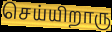
செய்யிறாரு